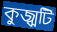
কুজ্ঝটি